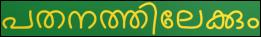
പതനത്തിലേക്കും